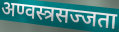
अण्वस्त्रसज्जता